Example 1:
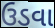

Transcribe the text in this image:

ઉડવા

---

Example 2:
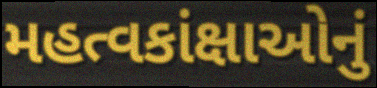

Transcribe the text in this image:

મહત્વકાંક્ષાઓનું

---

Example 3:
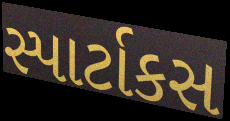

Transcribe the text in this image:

સ્પાર્ટાકસ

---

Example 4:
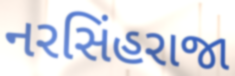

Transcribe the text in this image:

નરસિંહરાજા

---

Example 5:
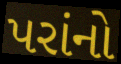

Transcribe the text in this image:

પરાંનો